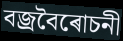
বজ্ৰবৈৰোচনী